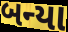
બન્યા